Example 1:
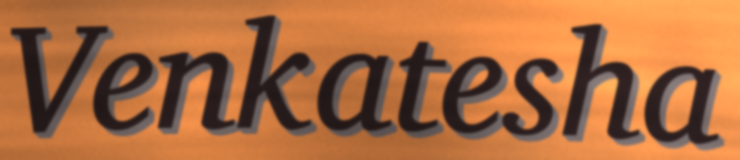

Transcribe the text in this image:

Venkatesha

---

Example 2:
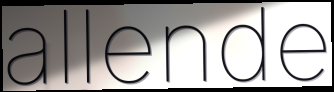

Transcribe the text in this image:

allende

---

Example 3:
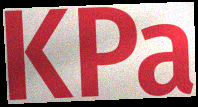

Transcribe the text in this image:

KPa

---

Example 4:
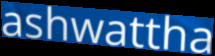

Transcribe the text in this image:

ashwattha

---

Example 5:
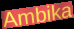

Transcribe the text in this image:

Ambika